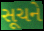
સૂચને